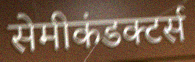
सेमीकंडक्टर्स